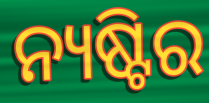
ନ୍ୟଷ୍ଟିର